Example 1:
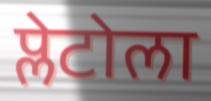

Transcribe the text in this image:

प्लेटोला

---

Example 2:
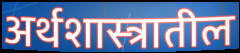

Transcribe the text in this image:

अर्थशास्त्रातील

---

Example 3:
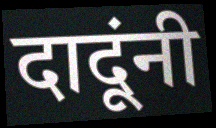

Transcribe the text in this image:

दादूंनी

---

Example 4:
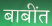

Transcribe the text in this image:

बाबींत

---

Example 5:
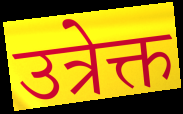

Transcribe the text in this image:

उत्रेक्त